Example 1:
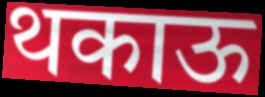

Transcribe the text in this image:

थकाऊ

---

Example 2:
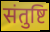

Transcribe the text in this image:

संतुष्टि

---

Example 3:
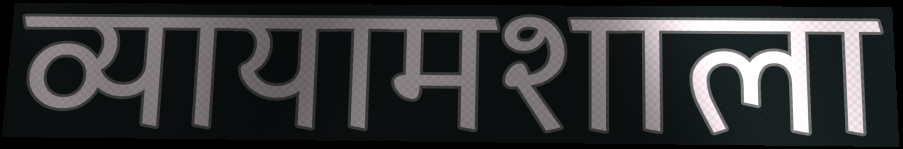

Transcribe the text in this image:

व्यायामशाला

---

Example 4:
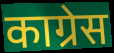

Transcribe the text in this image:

काग्रेस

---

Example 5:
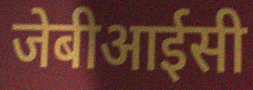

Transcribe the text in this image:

जेबीआईसी